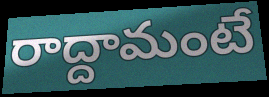
రాద్దామంటే